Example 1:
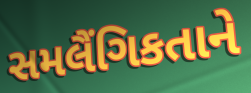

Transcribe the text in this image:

સમલૈંગિકતાને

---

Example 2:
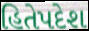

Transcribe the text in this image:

હિતેપદેશ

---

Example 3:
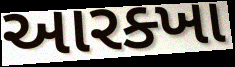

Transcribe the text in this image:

આરક્ખા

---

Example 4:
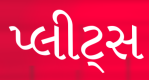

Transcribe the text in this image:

પ્લીટ્સ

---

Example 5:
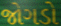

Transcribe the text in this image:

જોગડો